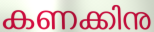
കണക്കിനു